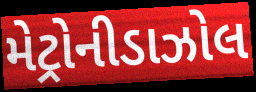
મેટ્રોનીડાઝોલ